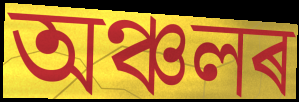
অঞ্চলৰ